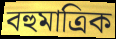
বহুমাত্রিক